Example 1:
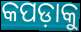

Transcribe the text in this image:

କପଡ଼ାକୁ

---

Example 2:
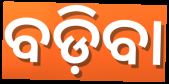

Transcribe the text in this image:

ବଡ଼ିବା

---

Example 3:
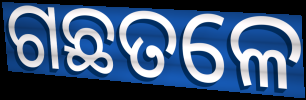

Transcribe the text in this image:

ଗଛତଳେ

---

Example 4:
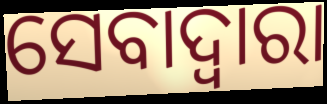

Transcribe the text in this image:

ସେବାଦ୍ବାରା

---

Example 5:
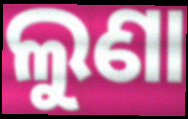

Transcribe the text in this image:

ଲୁଣା